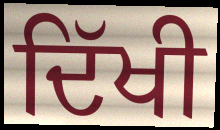
ਦਿੱਖੀ